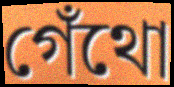
গেঁথো